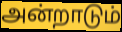
அன்றாடும்